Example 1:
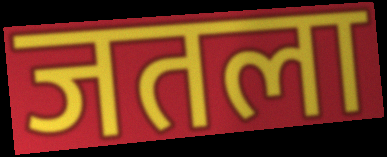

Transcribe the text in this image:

जतला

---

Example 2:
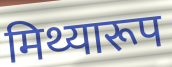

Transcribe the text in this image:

मिथ्यारूप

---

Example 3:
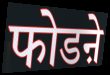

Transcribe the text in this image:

फोडऩे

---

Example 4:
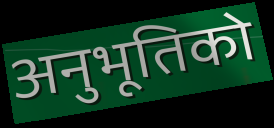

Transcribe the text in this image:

अनुभूतिको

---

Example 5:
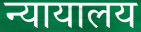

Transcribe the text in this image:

न्‍यायालय